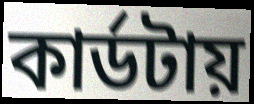
কার্ডটায়